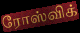
ரோஸ்விக்